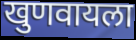
खुणवायला